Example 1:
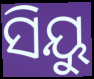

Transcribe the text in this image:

ସିୟୁ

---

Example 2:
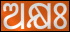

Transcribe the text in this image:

ଅକ୍ଷଃ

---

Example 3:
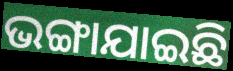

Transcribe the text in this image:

ଭଙ୍ଗାଯାଇଛି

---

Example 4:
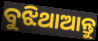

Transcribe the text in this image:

ବୁଝିଥାଆନ୍ତୁ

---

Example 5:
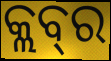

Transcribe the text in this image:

କ୍ଲବ୍‌ର